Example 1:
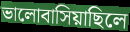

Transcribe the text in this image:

ভালোবাসিয়াছিলে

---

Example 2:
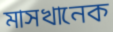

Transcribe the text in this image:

মাসখানেক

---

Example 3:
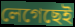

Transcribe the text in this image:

লেগেছেই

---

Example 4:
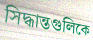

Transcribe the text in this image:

সিদ্ধান্তগুলিকে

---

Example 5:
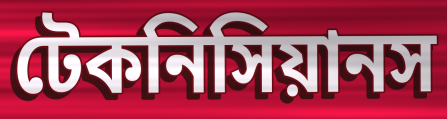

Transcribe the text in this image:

টেকনিসিয়ানস